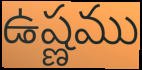
ఉష్ణము